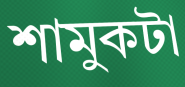
শামুকটা